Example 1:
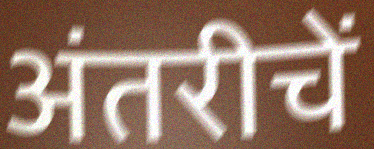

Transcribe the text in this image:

अंतरीचें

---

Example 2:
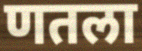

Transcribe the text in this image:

णतला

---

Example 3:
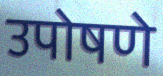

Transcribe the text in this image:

उपोषणे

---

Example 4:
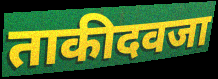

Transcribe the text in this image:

ताकीदवजा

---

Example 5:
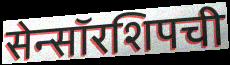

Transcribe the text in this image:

सेन्सॉरशिपची